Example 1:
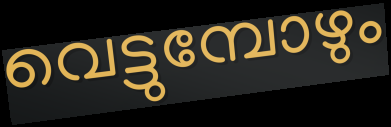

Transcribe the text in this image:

വെട്ടുമ്പോഴും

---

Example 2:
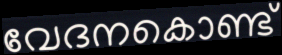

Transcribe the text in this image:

വേദനകൊണ്ട്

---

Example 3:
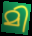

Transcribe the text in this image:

മി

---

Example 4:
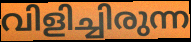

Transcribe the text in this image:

വിളിച്ചിരുന്ന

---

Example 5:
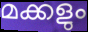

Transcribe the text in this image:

മക്കളും